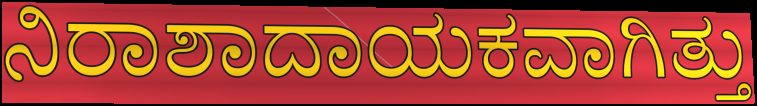
ನಿರಾಶಾದಾಯಕವಾಗಿತ್ತು